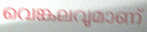
വെങ്കലവുമാണ്